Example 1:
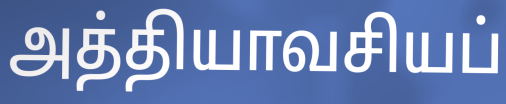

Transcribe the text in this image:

அத்தியாவசியப்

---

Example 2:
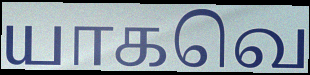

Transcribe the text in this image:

யாகவெ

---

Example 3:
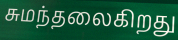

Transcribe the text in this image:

சுமந்தலைகிறது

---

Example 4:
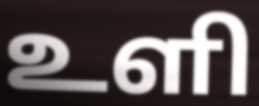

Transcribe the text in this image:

உளி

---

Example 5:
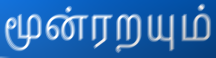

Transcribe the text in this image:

மூன்ரறயும்